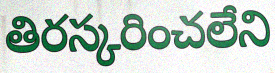
తిరస్కరించలేని